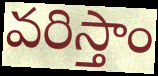
వరిస్తాం